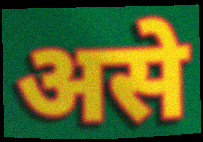
असे